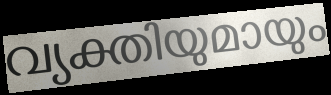
വ്യക്തിയുമായും